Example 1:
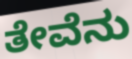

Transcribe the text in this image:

ತೇವೆನು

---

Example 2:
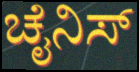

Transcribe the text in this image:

ಚೈನಿಸ್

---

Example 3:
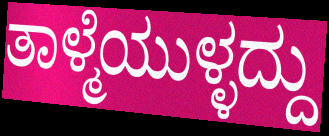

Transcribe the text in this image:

ತಾಳ್ಮೆಯುಳ್ಳದ್ದು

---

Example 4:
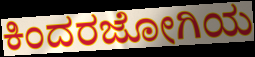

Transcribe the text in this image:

ಕಿಂದರಜೋಗಿಯ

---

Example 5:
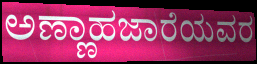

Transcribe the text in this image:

ಅಣ್ಣಾಹಜಾರೆಯವರ